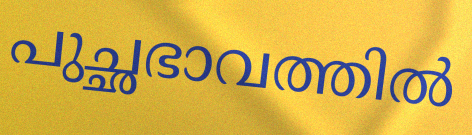
പുച്ഛഭാവത്തിൽ